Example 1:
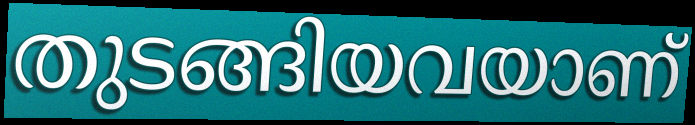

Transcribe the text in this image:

തുടങ്ങിയവയാണ്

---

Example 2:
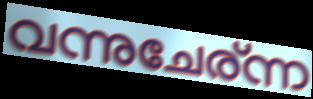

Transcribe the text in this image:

വന്നുചേര്ന്ന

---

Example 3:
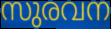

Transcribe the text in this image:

സുരവന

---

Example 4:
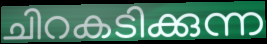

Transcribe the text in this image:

ചിറകടിക്കുന്ന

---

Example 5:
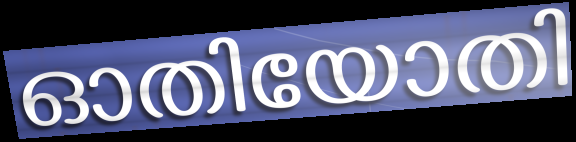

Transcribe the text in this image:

ഓതിയോതി